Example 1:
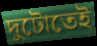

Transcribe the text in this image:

দুটোতেই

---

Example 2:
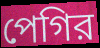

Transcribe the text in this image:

পেগির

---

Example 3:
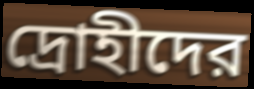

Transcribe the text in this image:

দ্রোহীদের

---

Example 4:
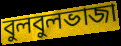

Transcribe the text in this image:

বুলবুলভাজা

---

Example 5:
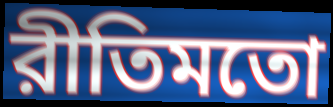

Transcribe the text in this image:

রীতিমতো